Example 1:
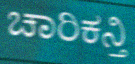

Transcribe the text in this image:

ಚಾರಿಕನ್ತಿ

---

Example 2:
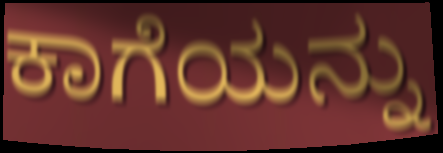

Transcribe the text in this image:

ಕಾಗೆಯನ್ನು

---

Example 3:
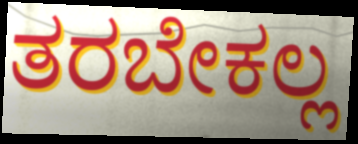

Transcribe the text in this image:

ತರಬೇಕಲ್ಲ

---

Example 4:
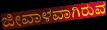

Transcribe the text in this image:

ಜೀವಾಳವಾಗಿರುವ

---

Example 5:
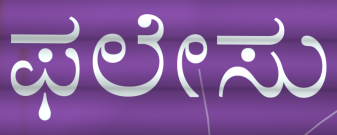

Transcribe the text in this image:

ಫಲೇಸು